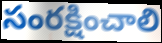
సంరక్షించాలి